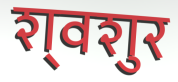
श्वशुर